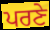
ਪਰਣੇ